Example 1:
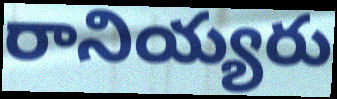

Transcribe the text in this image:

రానియ్యరు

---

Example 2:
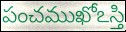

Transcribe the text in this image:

పంచముఖోఽస్తి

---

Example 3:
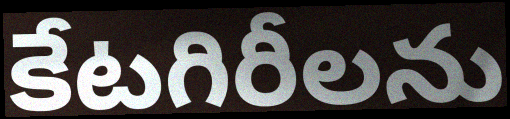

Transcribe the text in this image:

కేటగిరీలను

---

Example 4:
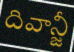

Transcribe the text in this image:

దివాన్జీ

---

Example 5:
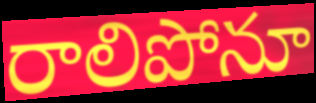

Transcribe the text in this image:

రాలిపోనూ